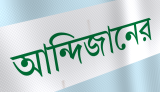
আন্দিজানের